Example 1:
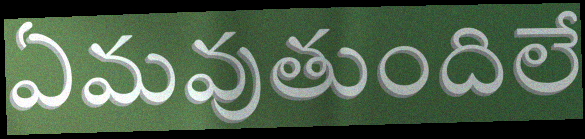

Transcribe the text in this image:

ఏమవుతుందిలే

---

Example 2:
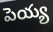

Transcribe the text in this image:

పెయ్య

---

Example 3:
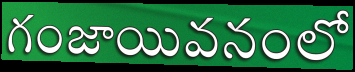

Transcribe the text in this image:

గంజాయివనంలో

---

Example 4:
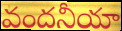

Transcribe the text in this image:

వందనీయా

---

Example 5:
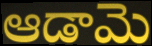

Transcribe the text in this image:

ఆడామె